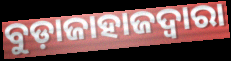
ବୁଡ଼ାଜାହାଜଦ୍ୱାରା